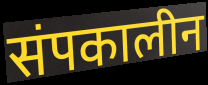
संपकालीन